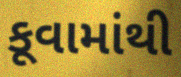
કૂવામાંથી